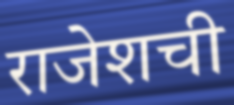
राजेशची